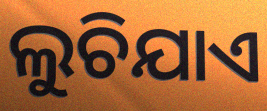
ଲୁଚିଯାଏ